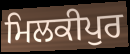
ਮਿਲਕੀਪੁਰ